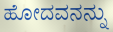
ಹೋದವನನ್ನು